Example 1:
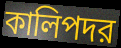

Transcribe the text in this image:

কালিপদর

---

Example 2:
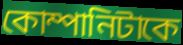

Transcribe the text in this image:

কোম্পানিটাকে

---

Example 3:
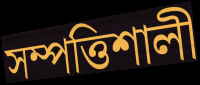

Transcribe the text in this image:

সম্পত্তিশালী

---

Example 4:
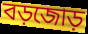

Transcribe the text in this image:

বড়জোড়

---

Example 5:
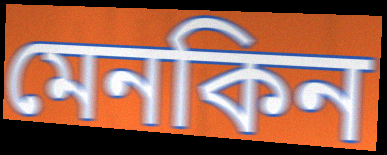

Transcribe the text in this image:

মেনকিন